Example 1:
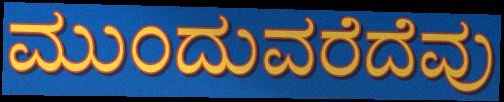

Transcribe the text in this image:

ಮುಂದುವರೆದೆವು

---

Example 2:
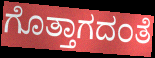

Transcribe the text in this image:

ಗೊತ್ತಾಗದಂತೆ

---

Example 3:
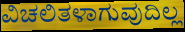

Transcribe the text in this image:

ವಿಚಲಿತಳಾಗುವುದಿಲ್ಲ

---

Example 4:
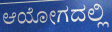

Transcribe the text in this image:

ಆಯೋಗದಲ್ಲಿ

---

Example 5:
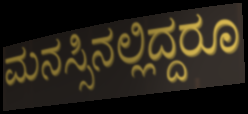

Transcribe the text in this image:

ಮನಸ್ಸಿನಲ್ಲಿದ್ದರೂ